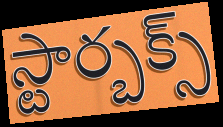
స్టార్బక్స్